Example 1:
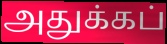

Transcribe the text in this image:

அதுக்கப்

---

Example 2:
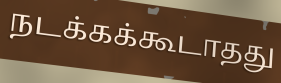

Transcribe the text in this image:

நடக்கக்கூடாதது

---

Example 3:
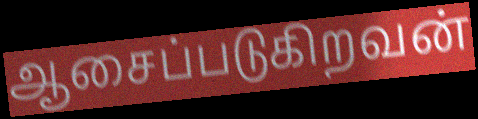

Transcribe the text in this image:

ஆசைப்படுகிறவன்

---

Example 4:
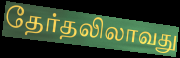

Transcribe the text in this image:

தேர்தலிலாவது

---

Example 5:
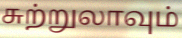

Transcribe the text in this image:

சுற்றுலாவும்